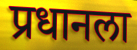
प्रधानला